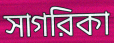
সাগরিকা